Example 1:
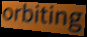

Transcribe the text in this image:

orbiting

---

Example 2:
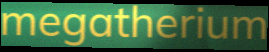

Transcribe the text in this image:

megatherium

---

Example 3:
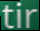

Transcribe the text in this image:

tir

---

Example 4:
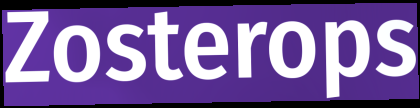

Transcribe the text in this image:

Zosterops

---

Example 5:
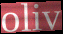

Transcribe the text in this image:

oliv